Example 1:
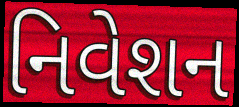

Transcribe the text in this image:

નિવેશન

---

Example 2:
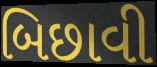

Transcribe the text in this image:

બિછાવી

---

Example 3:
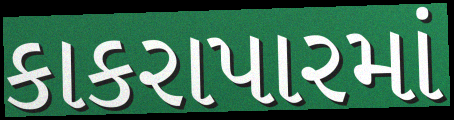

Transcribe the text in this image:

કાકરાપારમાં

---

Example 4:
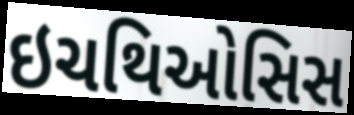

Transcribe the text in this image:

ઇચથિઓસિસ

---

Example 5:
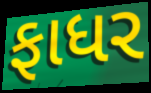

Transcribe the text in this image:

ફાધર